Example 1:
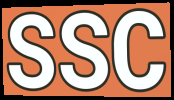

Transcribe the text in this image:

SSC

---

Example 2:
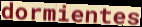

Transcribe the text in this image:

dormientes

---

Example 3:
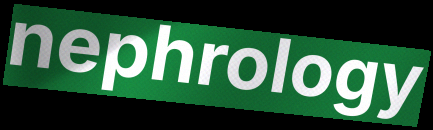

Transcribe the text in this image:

nephrology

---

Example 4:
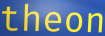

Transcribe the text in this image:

theon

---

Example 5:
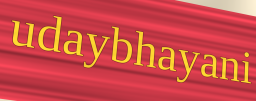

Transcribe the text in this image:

udaybhayani